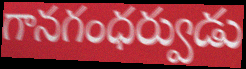
గానగంధర్వుడు